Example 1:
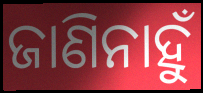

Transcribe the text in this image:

ଜାଣିନାହୁଁ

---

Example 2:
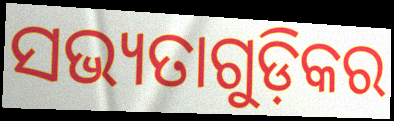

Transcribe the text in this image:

ସଭ୍ୟତାଗୁଡ଼ିକର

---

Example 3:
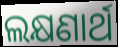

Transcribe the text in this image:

ଲକ୍ଷଣାର୍ଥ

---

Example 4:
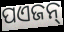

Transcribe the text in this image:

ପଏଜନ୍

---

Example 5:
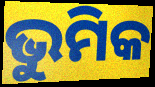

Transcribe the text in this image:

ଭୁମିକ